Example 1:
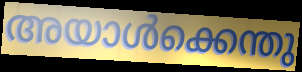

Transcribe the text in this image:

അയാൾക്കെന്തു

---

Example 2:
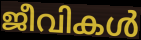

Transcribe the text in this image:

ജീവികൾ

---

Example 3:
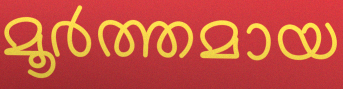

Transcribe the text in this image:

മൂർത്തമായ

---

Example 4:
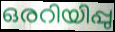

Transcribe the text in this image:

ഒരറിയിപ്പു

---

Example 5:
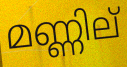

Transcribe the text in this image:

മണ്ണില്